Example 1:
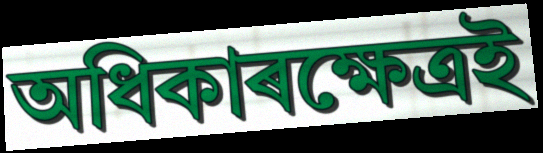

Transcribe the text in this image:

অধিকাৰক্ষেত্ৰই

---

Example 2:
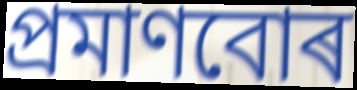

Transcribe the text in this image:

প্ৰমাণবোৰ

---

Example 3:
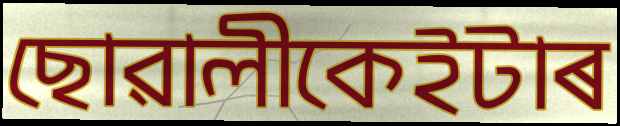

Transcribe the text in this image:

ছোৱালীকেইটাৰ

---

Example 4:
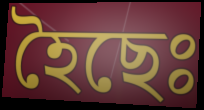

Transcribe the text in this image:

হৈছেঃ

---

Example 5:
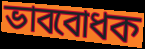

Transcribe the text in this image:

ভাববোধক